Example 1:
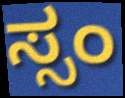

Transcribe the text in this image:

ಸ್ಸಂ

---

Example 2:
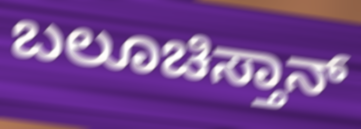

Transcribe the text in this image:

ಬಲೂಚಿಸ್ತಾನ್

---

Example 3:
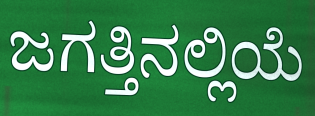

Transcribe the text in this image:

ಜಗತ್ತಿನಲ್ಲಿಯೆ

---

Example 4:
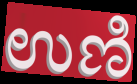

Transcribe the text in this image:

ಉಣಿ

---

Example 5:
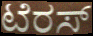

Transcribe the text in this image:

ಟೆರಸ್